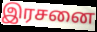
இரசனை